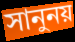
সানুনয়